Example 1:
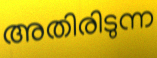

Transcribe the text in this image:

അതിരിടുന്ന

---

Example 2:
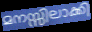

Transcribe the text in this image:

മനസ്സിലാക്കി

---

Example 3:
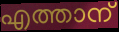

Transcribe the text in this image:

എത്താന്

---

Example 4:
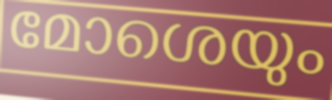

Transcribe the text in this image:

മോശെയും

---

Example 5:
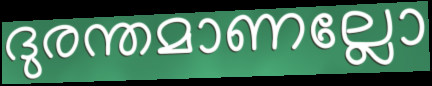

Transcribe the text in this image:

ദുരന്തമാണല്ലോ